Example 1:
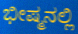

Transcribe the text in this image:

ಭೀಷ್ಮನಲ್ಲಿ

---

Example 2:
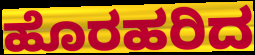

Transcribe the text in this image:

ಹೊರಹರಿದ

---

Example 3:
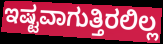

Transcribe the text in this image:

ಇಷ್ಟವಾಗುತ್ತಿರಲಿಲ್ಲ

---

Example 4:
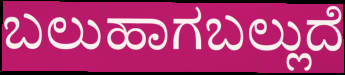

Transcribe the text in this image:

ಬಲುಹಾಗಬಲ್ಲುದೆ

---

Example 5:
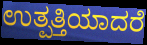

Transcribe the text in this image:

ಉತ್ಪತ್ತಿಯಾದರೆ